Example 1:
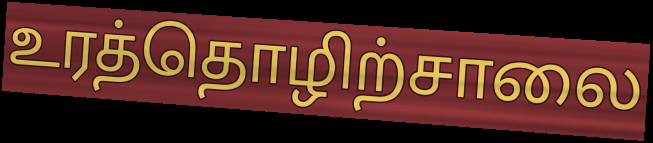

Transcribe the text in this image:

உரத்தொழிற்சாலை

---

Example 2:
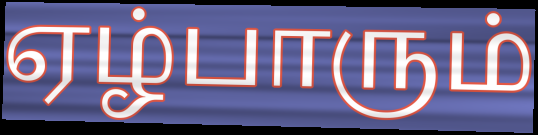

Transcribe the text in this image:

ஏழ்பாரும்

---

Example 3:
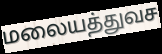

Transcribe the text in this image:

மலையத்துவச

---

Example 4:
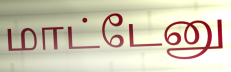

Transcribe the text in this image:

மாட்டேனு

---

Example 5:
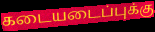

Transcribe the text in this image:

கடையடைப்புக்கு